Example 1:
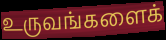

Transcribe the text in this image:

உருவங்களைக்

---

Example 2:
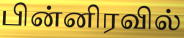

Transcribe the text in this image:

பின்னிரவில்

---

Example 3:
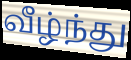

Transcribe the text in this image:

வீழ்ந்து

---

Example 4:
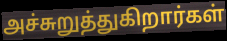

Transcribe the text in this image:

அச்சுறுத்துகிறார்கள்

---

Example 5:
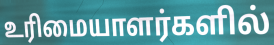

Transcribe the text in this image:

உரிமையாளர்களில்